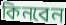
কিনবেন